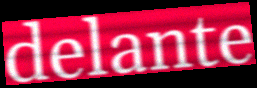
delante